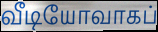
வீடியோவாகப்